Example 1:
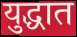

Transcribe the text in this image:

युद्धात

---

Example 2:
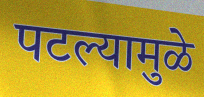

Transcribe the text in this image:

पटल्यामुळे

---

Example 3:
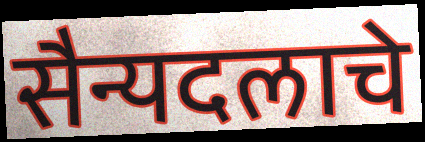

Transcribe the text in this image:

सैन्यदलाचे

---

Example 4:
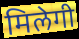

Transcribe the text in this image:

मिलेगी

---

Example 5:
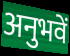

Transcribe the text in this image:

अनुभवें